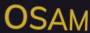
OSAM